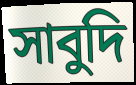
সাবুদি